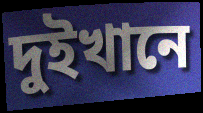
দুইখানে